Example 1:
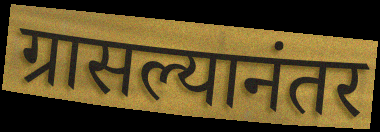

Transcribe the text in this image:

ग्रासल्यानंतर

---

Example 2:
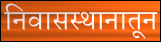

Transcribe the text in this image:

निवासस्थानातून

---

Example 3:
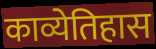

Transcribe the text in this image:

काव्येतिहास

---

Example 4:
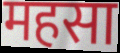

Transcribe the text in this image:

महसा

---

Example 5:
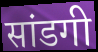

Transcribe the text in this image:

सांडगी